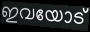
ഇവയോട്